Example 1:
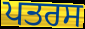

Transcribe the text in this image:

ਪਤਰਸ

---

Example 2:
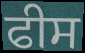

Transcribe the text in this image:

ਫੀਸ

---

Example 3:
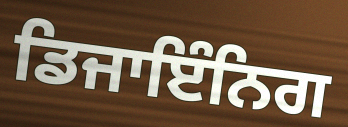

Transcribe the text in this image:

ਡਿਜਾਇੰਨਿਗ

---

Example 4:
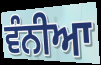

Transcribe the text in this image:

ਵੰਨੀਆ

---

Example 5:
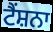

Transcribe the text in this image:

ਟੈਂਸ਼ਨਾ